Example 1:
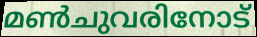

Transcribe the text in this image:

മൺചുവരിനോട്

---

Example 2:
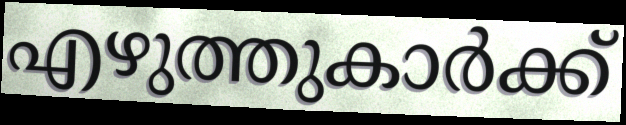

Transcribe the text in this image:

എഴുത്തുകാർക്ക്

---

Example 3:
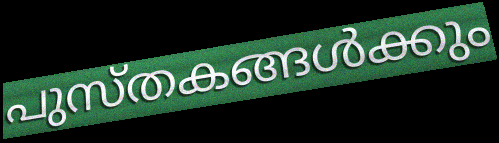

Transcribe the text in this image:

പുസ്തകങ്ങൾക്കും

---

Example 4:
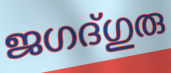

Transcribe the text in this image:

ജഗദ്ഗുരു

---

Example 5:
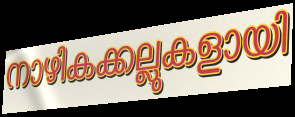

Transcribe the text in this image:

നാഴികക്കല്ലുകളായി